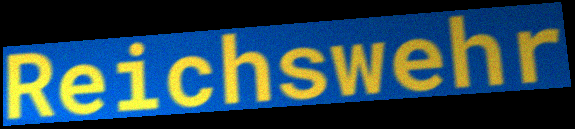
Reichswehr